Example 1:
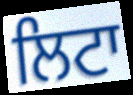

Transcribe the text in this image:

ਲਿਟਾ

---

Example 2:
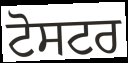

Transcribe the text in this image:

ਟੋਸਟਰ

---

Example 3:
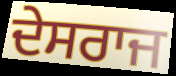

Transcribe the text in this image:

ਦੇਸਰਾਜ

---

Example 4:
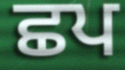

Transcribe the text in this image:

ਛਪ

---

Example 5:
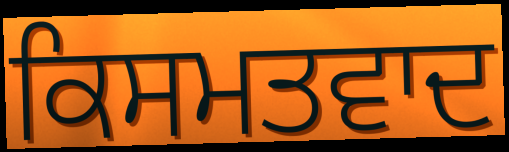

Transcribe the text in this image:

ਕਿਸਮਤਵਾਦ